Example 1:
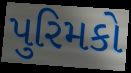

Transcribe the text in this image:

પુરિમકો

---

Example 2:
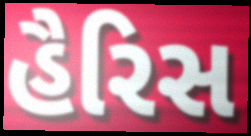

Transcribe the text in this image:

હૈરિસ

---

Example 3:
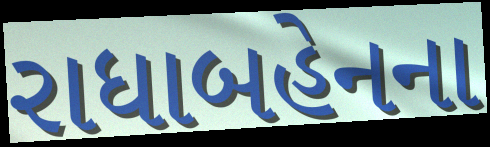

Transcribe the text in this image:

રાધાબહેનના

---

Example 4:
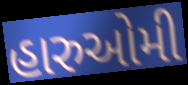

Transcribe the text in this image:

હારુઓમી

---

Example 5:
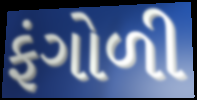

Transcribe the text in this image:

ફંગોળી